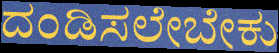
ದಂಡಿಸಲೇಬೇಕು